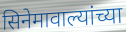
सिनेमावाल्यांच्या